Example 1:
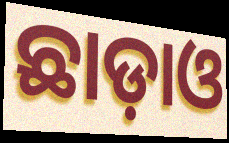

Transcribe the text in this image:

ଛାଡ଼ାଓ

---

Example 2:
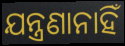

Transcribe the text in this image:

ଯନ୍ତ୍ରଣାନାହିଁ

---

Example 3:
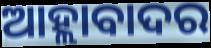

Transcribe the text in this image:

ଆହ୍ଲାବାଦର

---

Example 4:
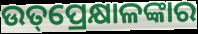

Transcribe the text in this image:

ଉତ୍‌ପ୍ରେକ୍ଷାଳଙ୍କାର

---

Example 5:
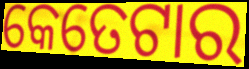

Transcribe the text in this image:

କେତେଟାର